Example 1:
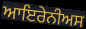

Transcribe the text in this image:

ਆਇਰੇਨੀਅਸ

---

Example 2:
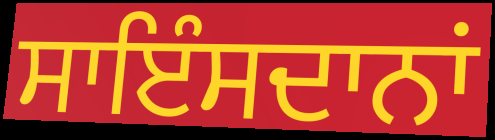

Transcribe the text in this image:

ਸਾਇੰਸਦਾਨਾਂ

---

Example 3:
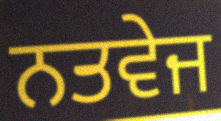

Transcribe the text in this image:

ਨਤਵੇਜ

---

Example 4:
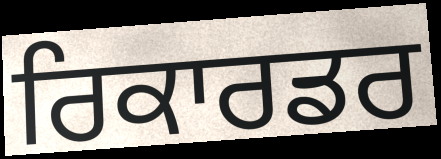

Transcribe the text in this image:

ਰਿਕਾਰਡਰ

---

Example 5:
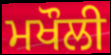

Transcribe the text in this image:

ਮਖੌਲੀ